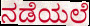
ನಡೆಯಲೆ